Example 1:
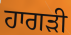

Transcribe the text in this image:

ਹਾਗੜੀ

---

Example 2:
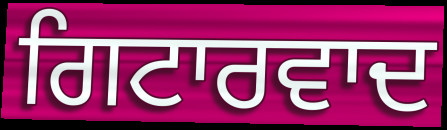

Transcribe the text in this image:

ਗਿਟਾਰਵਾਦ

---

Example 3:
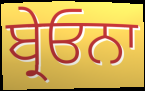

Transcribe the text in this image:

ਬ੍ਰੇਓਨਾ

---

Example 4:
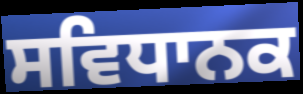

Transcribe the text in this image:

ਸਵਿਧਾਨਕ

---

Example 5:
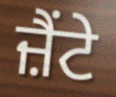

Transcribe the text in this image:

ਜ਼ੈਂਟੇ